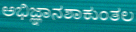
ಅಭಿಜ್ಞಾನಶಾಕುಂತಲ